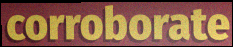
corroborate